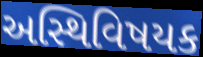
અસ્થિવિષયક